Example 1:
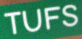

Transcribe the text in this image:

TUFS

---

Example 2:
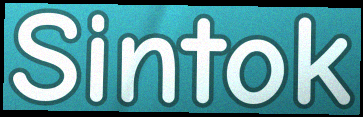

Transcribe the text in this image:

Sintok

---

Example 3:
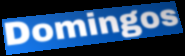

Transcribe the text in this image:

Domingos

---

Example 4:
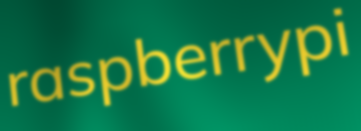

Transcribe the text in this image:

raspberrypi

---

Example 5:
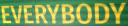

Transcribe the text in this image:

EVERYBODY